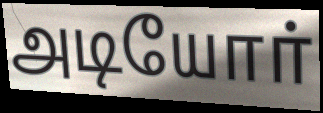
அடியோர்